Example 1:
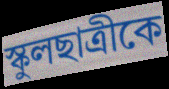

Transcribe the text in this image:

স্কুলছাত্রীকে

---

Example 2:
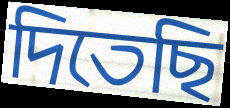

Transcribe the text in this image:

দিতেছি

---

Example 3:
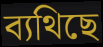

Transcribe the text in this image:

ব্যথিছে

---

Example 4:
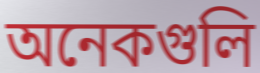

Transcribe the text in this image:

অনেকগুলি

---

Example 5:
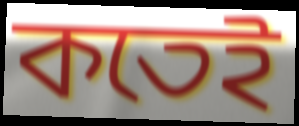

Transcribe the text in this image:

কতেই